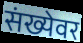
संख्येवर